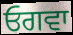
ਓਗਵਾ